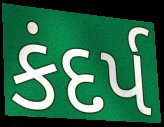
કંદર્પ